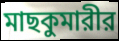
মাছকুমারীর